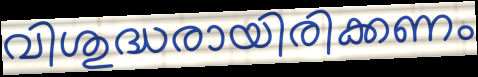
വിശുദ്ധരായിരിക്കണം